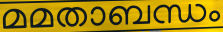
മമതാബന്ധം